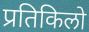
प्रतिकिलो